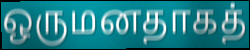
ஒருமனதாகத்